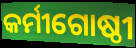
କର୍ମୀଗୋଷ୍ଠୀ